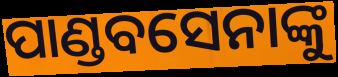
ପାଣ୍ଡବସେନାଙ୍କୁ